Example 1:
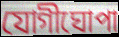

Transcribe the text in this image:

যোগীঘোপা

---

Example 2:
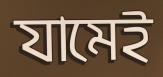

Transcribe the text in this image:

যামেই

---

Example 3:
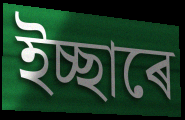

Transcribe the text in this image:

ইচ্ছাৰে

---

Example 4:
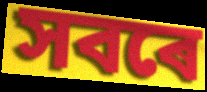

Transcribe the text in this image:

সবৰে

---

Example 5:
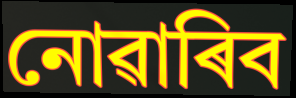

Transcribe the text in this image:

নোৱাৰিব